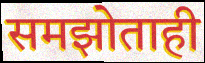
समझोताही